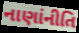
નાણાંનીતિ